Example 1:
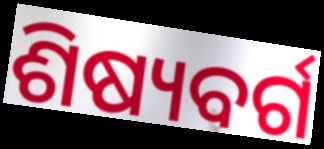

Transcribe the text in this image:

ଶିଷ୍ୟବର୍ଗ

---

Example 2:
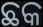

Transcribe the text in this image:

ଛକ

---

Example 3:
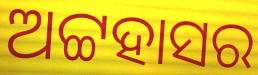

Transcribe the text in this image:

ଅଟ୍ଟହାସର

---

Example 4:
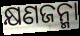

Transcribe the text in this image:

କ୍ଷଣଜନ୍ମା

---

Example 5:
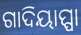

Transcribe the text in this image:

ଗାଦିୟାପ୍ପା